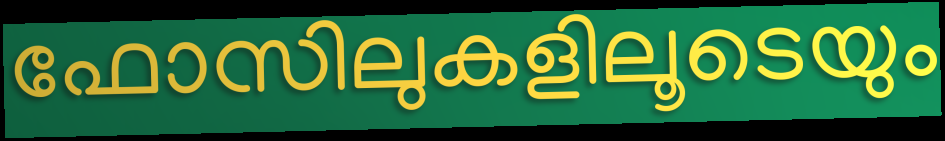
ഫോസിലുകളിലൂടെയും